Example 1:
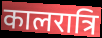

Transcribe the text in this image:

कालरात्रि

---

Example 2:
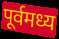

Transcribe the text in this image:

पूर्वमध्य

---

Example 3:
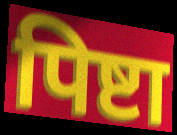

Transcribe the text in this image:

पिष्टा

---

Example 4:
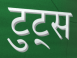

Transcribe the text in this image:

टुट्स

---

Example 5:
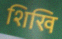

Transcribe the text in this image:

शिखि